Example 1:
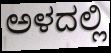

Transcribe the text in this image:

ಅಳದಲ್ಲಿ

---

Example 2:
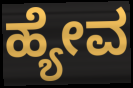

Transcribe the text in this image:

ಹ್ಯೇವ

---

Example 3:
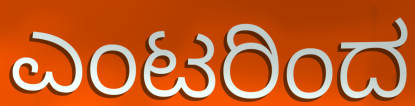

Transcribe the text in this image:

ಎಂಟರಿಂದ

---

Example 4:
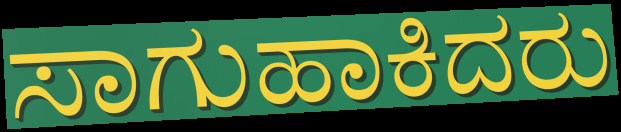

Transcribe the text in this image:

ಸಾಗುಹಾಕಿದರು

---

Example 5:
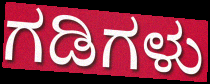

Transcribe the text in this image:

ಗಡಿಗಳು